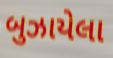
બુઝાયેલા